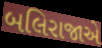
બલિરાજાએ